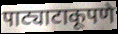
पाट्याटाकूपणे